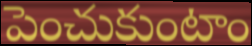
పెంచుకుంటాం